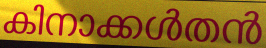
കിനാക്കൾതൻ